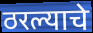
ठरल्याचे